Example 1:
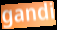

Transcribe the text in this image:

gandi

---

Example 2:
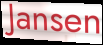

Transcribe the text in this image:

Jansen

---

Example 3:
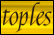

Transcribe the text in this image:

toples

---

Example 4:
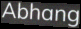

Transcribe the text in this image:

Abhang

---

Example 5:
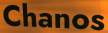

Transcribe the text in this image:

Chanos